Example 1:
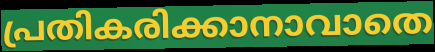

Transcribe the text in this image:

പ്രതികരിക്കാനാവാതെ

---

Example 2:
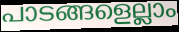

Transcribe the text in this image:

പാടങ്ങളെല്ലാം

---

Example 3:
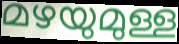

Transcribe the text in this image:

മഴയുമുള്ള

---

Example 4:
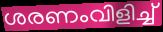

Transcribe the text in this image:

ശരണംവിളിച്ച്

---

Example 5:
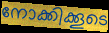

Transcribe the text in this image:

നോക്കിക്കൂടെ